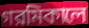
গরমিকালে